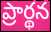
ప్రార్థన